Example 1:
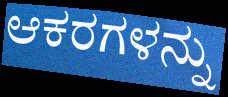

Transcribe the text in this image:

ಆಕರಗಳನ್ನು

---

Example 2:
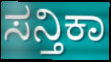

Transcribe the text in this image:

ಸನ್ತಿಕಾ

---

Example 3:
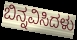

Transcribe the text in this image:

ಬಿನ್ನವಿಸಿದಳು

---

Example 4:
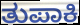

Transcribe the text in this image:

ತುಪಾಕಿ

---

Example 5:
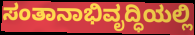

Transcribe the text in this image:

ಸಂತಾನಾಭಿವೃದ್ಧಿಯಲ್ಲಿ